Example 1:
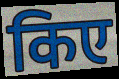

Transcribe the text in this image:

किए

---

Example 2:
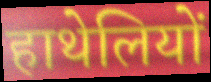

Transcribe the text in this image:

हाथेलियों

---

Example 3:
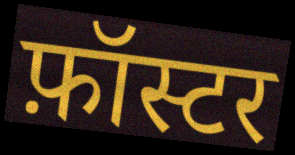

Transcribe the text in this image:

फ़ॉस्टर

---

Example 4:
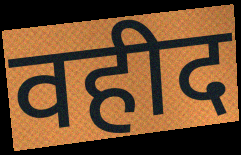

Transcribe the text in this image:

वहीद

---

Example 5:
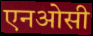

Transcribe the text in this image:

एनओसी